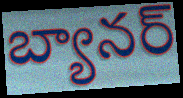
బ్యానర్